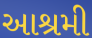
આશ્રમી